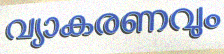
വ്യാകരണവും